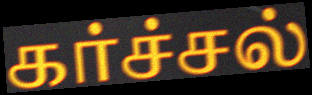
கர்ச்சல்